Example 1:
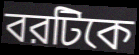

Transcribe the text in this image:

বরটিকে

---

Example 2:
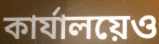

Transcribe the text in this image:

কার্যালয়েও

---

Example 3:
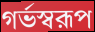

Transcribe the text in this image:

গর্ভস্বরূপ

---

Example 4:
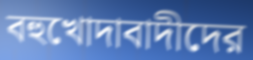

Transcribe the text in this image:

বহুখোদাবাদীদের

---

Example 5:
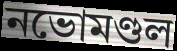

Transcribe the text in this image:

নভোমণ্ডল